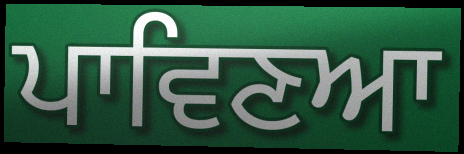
ਪਾਵਿਣਆ